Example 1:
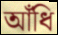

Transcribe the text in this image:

আঁধি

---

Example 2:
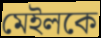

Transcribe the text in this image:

মেইলকে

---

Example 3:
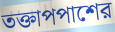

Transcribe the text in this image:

তক্তাপপাশের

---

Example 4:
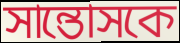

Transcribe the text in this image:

সান্তোসকে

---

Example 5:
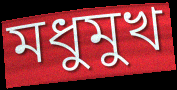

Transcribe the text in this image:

মধুমুখ